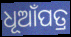
ଧୂଆଁପତ୍ର